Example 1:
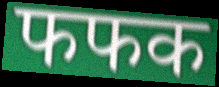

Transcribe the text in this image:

फफक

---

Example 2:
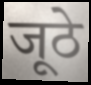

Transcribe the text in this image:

जूठे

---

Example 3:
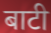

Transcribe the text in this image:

बाटी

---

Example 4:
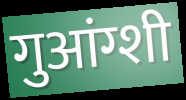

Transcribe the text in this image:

गुआंग्शी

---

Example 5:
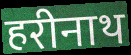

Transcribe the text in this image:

हरीनाथ